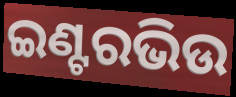
ଇଣ୍ଟରଭିଉ